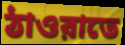
ঠাওরাতে